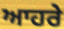
ਆਹਰੇ